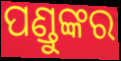
ପଣ୍ଡୁଙ୍କର